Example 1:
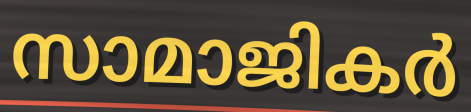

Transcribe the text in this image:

സാമാജികർ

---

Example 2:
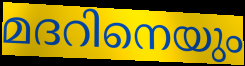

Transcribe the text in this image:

മദറിനെയും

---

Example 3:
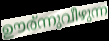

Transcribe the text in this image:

ഊര്ന്നുവീഴുന്ന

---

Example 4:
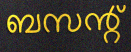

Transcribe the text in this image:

ബസന്റ്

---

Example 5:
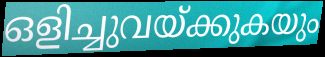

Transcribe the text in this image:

ഒളിച്ചുവയ്ക്കുകയും